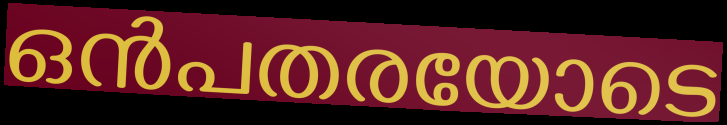
ഒൻപതരയോടെ